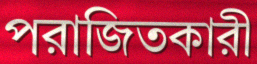
পরাজিতকারী